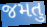
જમતુ